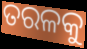
ତରଳକୁ